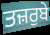
ਤਜ਼ਰੁਬੇ